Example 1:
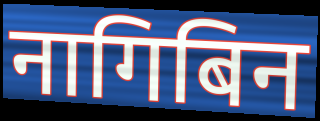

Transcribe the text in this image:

नागिबिन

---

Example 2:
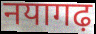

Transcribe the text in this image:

नयागढ़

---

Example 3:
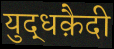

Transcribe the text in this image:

युद्धक़ैदी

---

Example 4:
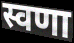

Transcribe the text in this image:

स्वणा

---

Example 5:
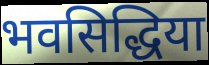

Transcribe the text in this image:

भवसिद्धिया